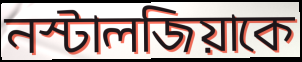
নস্টালজিয়াকে